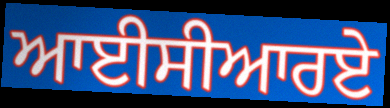
ਆਈਸੀਆਰਏ